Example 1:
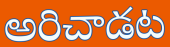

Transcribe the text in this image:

అరిచాడట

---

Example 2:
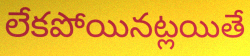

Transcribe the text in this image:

లేకపోయినట్లయితే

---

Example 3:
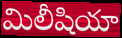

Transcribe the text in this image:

మిలీషియా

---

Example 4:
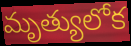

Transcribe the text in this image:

మృత్యులోక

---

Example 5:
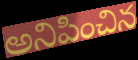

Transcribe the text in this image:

అనిపించిన